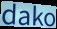
dako